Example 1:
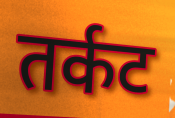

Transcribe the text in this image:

तर्कट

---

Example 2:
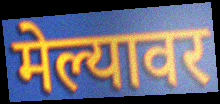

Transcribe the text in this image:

मेल्यावर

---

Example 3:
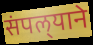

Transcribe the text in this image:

संपल्याने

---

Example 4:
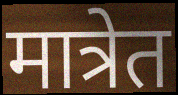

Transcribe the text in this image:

मात्रेत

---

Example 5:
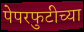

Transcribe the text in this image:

पेपरफुटीच्या